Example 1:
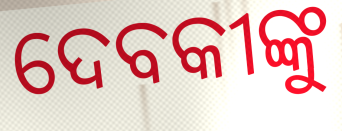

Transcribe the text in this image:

ଦେବକୀଙ୍କୁ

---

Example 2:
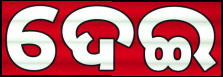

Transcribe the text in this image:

ଦେଇ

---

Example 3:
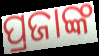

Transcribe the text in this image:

ପ୍ରଜାଙ୍କ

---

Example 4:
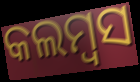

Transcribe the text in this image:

କଲମ୍ବସ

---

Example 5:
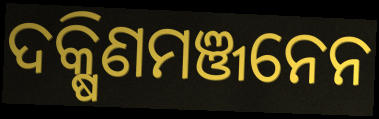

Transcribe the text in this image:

ଦକ୍ଷିଣମଞ୍ଜନେନ